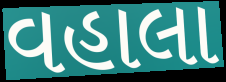
વહાલા